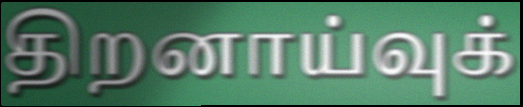
திறனாய்வுக்